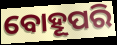
ବୋହୂପରି